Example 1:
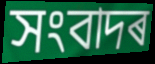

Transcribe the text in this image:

সংবাদৰ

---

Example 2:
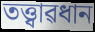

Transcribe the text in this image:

তত্ত্বাৱধান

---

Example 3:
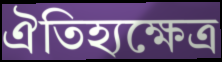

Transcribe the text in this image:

ঐতিহ্যক্ষেত্ৰ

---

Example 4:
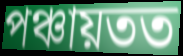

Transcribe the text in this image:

পঞ্চায়তত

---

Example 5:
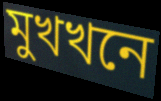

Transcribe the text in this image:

মুখখনে